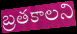
బ్రతకాలని